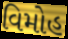
વિમોહ